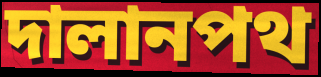
দালানপথ